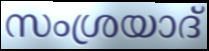
സംശ്രയാദ്